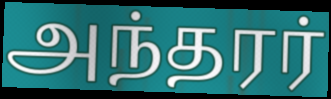
அந்தரர்